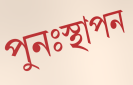
পুনঃস্থাপন